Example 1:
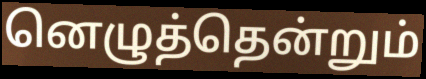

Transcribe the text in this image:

னெழுத்தென்றும்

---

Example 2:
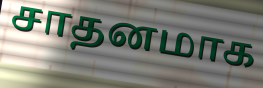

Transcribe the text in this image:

சாதனமாக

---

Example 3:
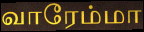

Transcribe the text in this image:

வாரேம்மா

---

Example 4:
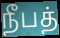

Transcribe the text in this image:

நீபத்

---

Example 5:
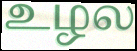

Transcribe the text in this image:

உழல